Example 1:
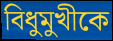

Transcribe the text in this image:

বিধুমুখীকে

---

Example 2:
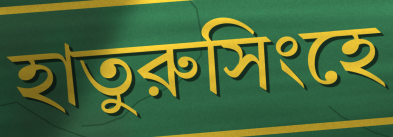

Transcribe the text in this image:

হাতুরুসিংহে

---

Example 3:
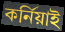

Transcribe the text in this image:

কর্নিয়াই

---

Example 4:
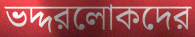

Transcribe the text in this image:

ভদ্দরলোকদের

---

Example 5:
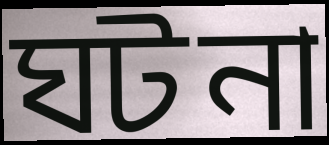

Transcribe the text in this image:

ঘটনা